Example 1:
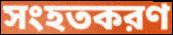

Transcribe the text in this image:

সংহতকরণ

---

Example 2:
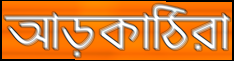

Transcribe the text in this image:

আড়কাঠিরা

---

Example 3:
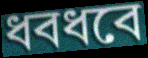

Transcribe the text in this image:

ধবধবে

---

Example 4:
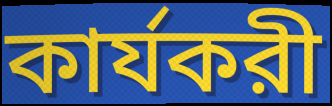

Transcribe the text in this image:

কার্যকরী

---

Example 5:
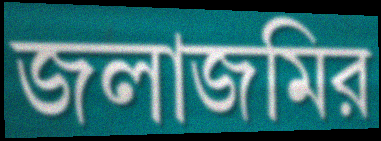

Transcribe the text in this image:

জলাজমির